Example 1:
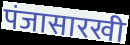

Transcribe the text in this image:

पंजासारखी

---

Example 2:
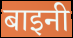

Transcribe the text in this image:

बाइनी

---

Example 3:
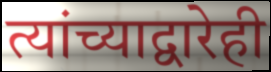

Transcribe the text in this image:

त्यांच्याद्वारेही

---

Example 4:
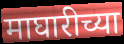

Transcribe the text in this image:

माघारीच्या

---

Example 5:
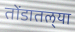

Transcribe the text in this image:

तोंडातल्या